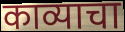
काव्याचा